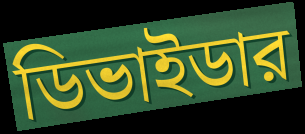
ডিভাইডার